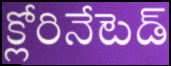
క్లోరినేటెడ్